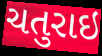
ચતુરાઇ